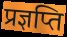
प्रज्ञप्ति